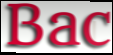
Bac